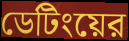
ডেটিংয়ের